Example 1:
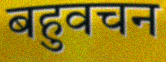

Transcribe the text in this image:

बहुवचन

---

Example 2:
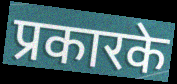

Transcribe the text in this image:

प्रकारके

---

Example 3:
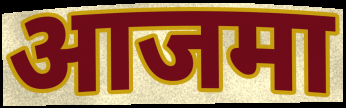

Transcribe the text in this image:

आजमा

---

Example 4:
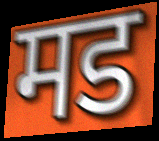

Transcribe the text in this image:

मड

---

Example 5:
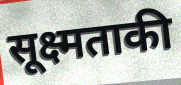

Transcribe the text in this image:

सूक्ष्मताकी